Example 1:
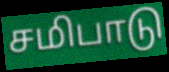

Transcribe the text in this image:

சமிபாடு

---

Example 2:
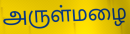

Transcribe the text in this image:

அருள்மழை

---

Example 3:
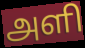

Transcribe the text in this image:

அளி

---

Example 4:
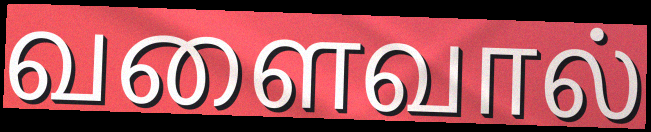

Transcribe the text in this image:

வளைவால்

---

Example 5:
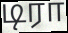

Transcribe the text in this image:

டிரா